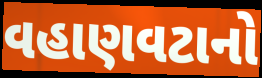
વહાણવટાનો